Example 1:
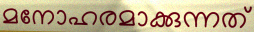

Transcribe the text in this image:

മനോഹരമാക്കുന്നത്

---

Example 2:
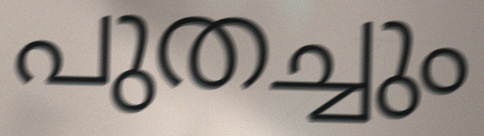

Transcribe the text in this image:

പുതച്ചും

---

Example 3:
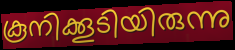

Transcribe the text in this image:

കൂനിക്കൂടിയിരുന്നു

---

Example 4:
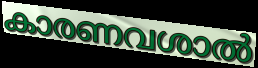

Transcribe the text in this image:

കാരണവശാൽ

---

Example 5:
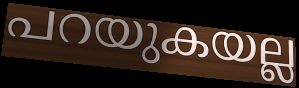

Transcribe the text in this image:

പറയുകയല്ല